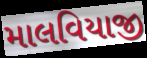
માલવિયાજી